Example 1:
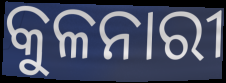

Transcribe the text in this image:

କୁଳନାରୀ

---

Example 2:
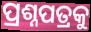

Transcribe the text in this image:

ପ୍ରଶ୍ନପତ୍ରକୁ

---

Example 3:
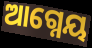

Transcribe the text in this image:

ଆଗ୍ନେୟ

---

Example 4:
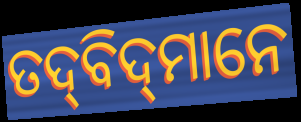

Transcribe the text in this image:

ତଦ୍‌ବିଦ୍‌ମାନେ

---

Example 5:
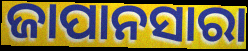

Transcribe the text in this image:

ଜାପାନସାରା